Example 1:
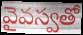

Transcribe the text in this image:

వైవస్వతో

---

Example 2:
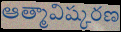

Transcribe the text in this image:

ఆత్మావిష్కరణ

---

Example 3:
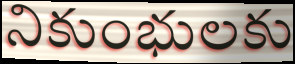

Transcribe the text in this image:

నికుంభులకు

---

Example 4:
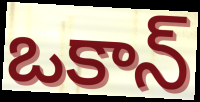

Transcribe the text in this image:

ఒకాన్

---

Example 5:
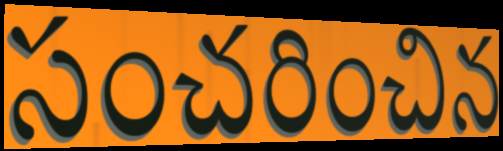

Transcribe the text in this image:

సంచరించిన